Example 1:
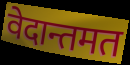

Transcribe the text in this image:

वेदान्तमत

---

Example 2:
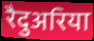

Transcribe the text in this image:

रैदुअरिया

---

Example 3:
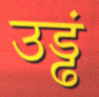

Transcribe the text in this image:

उड्ढं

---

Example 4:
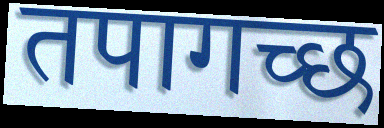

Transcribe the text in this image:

तपागच्छ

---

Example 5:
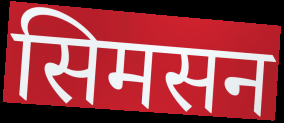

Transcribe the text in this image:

सिमसन